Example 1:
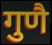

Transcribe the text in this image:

गुणै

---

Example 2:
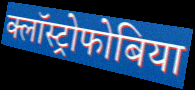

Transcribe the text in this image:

क्लॉस्ट्रोफोबिया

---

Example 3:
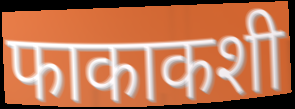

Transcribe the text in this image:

फाकाकशी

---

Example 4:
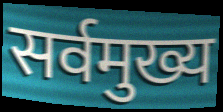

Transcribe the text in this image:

सर्वमुख्य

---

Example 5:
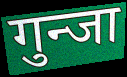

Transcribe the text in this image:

गुन्जा